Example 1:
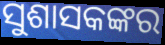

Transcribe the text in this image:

ସୁଶାସକଙ୍କର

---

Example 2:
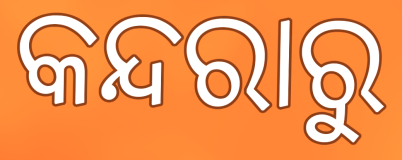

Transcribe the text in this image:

କନ୍ଦରାରୁ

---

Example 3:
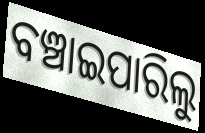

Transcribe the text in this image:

ବଞ୍ଚାଇପାରିଲୁ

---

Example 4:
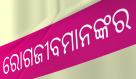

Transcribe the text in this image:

ରୋଗଜୀବମାନଙ୍କର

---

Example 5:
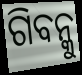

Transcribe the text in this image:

ଗିବନ୍କୁ